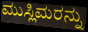
ಮುಸ್ಲಿಮರನ್ನು